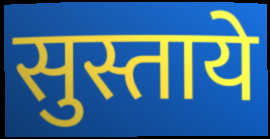
सुस्ताये